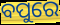
ବପୁରେ